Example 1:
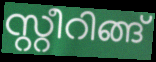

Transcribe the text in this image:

സ്റ്റീറിങ്ങ്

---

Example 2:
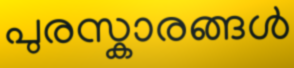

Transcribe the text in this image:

പുരസ്കാരങ്ങൾ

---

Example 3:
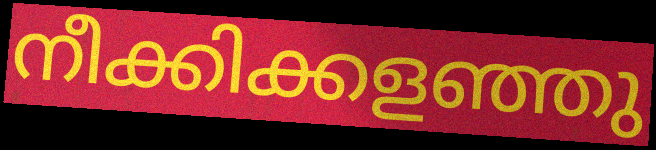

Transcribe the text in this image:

നീക്കിക്കളഞ്ഞു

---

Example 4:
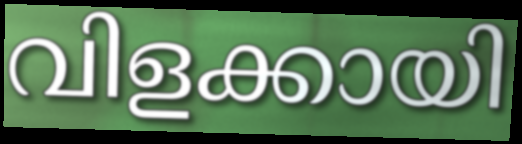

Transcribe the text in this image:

വിളക്കായി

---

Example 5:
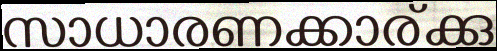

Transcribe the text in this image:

സാധാരണക്കാര്ക്കു